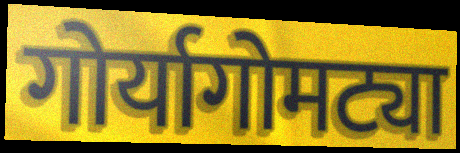
गोर्यागोमट्या